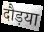
दौड़या